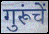
गुरूंचें